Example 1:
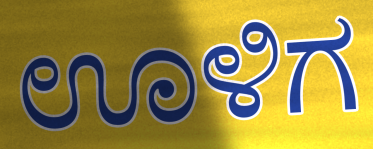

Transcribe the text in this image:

ಊಳಿಗ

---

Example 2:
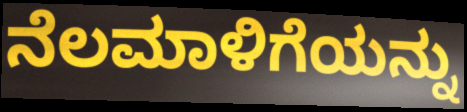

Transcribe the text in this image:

ನೆಲಮಾಳಿಗೆಯನ್ನು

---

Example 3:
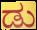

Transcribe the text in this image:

ಡು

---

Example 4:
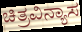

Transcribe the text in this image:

ಚಿತ್ರವಿನ್ಯಾಸ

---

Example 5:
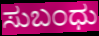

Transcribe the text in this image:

ಸುಬಂಧು